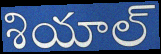
శియాల్